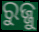
ରୁଜ୍ଜୁ